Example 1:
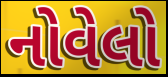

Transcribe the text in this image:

નોવેલો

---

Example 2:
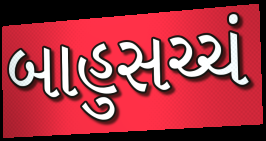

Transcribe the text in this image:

બાહુસચ્ચં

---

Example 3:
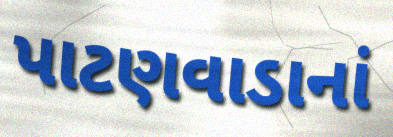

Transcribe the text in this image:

પાટણવાડાનાં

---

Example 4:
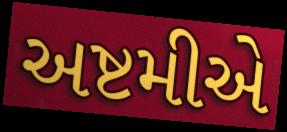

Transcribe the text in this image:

અષ્ટમીએ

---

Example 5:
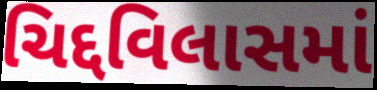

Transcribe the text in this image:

ચિદ્દવિલાસમાં